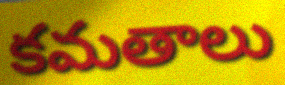
కమతాలు